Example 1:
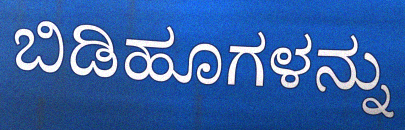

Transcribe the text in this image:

ಬಿಡಿಹೂಗಳನ್ನು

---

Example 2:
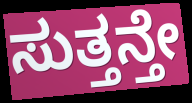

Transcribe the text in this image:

ಸುತ್ತನ್ತೇ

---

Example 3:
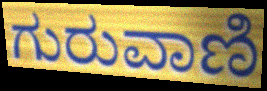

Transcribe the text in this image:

ಗುರುವಾಣಿ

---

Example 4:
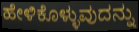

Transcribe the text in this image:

ಹೇಳಿಕೊಳ್ಳುವುದನ್ನು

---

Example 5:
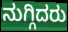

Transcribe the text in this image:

ನುಗ್ಗಿದರು